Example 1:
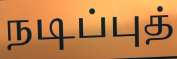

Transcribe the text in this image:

நடிப்புத்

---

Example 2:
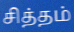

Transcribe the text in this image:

சித்தம்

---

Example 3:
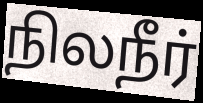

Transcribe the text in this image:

நிலநீர்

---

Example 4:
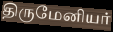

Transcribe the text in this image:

திருமேனியர்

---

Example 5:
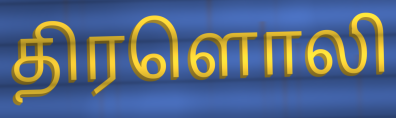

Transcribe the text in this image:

திரளொலி